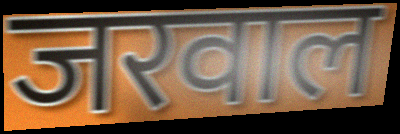
जरवाल